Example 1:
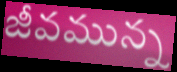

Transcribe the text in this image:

జీవమున్న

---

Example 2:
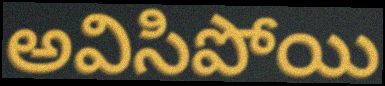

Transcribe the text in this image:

అవిసిపోయి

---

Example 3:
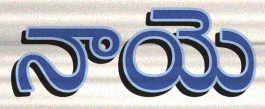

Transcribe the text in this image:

నాయె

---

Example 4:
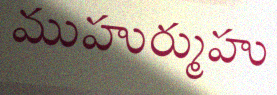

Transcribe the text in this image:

ముహుర్ముహు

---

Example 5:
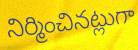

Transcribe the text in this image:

నిర్మించినట్లుగా